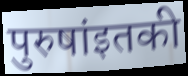
पुरुषांइतकी